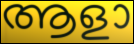
ആളാ